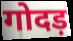
गोदड़